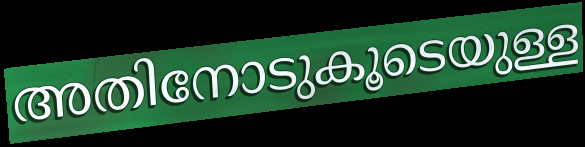
അതിനോടുകൂടെയുള്ള